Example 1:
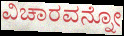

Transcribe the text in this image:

ವಿಚಾರವನ್ನೋ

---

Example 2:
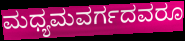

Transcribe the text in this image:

ಮಧ್ಯಮವರ್ಗದವರೂ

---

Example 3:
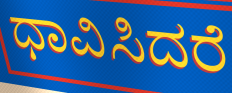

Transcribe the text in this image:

ಧಾವಿಸಿದರೆ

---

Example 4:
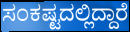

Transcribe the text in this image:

ಸಂಕಷ್ಟದಲ್ಲಿದ್ದಾರೆ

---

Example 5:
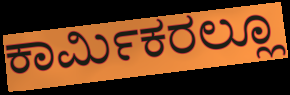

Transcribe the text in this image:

ಕಾರ್ಮಿಕರಲ್ಲೂ